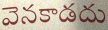
వెనకాడదు